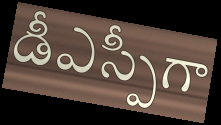
డీఎస్పీగా